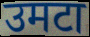
उमटा